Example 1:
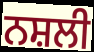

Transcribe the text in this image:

ਨਸ਼ਲੀ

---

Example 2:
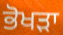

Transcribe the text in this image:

ਭੋਖੜਾ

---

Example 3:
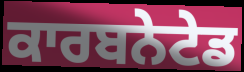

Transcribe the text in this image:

ਕਾਰਬਨੇਟੇਡ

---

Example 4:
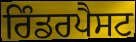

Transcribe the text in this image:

ਰਿੰਡਰਪੈਸਟ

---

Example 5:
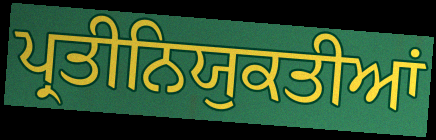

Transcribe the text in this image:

ਪ੍ਰਤੀਨਿਯੁਕਤੀਆਂ